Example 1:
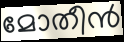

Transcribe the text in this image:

മോതീൻ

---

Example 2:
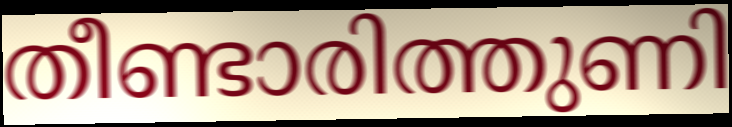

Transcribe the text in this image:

തീണ്ടാരിത്തുണി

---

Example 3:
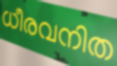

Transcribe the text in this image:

ധീരവനിത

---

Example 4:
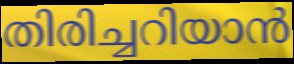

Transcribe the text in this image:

തിരിച്ചറിയാൻ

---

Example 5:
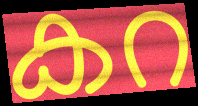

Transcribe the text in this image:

കറ